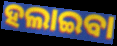
ହଲାଇବା